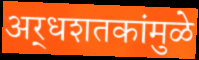
अर्धशतकांमुळे